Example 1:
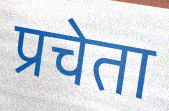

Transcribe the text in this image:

प्रचेता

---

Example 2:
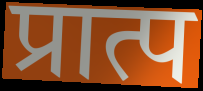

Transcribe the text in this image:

प्रात्प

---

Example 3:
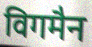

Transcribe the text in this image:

विगमैन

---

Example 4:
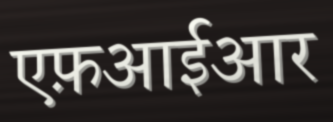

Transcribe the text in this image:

एफ़आईआर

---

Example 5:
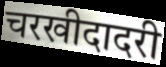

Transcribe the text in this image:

चरखीदादरी